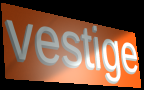
vestige